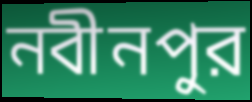
নবীনপুর